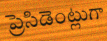
ప్రెసిడెంట్లుగా